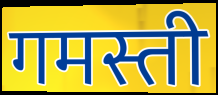
गमस्ती